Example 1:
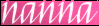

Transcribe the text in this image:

nanna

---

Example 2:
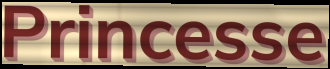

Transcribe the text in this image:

Princesse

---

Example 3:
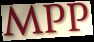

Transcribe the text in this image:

MPP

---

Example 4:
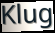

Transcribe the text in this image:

Klug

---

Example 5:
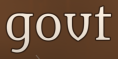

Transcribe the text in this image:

gout